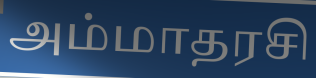
அம்மாதரசி